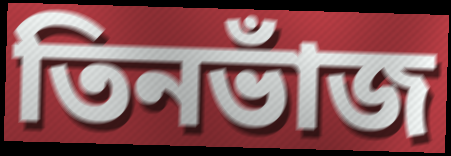
তিনভাঁজ